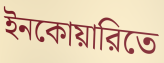
ইনকোয়ারিতে